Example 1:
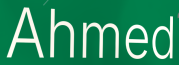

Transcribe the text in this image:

Ahmed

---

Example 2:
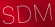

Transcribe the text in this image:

SDM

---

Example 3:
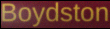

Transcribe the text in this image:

Boydston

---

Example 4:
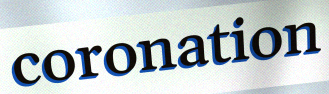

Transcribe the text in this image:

coronation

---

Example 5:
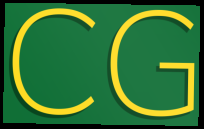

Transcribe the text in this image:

CG